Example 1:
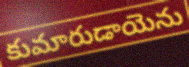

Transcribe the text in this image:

కుమారుడాయెను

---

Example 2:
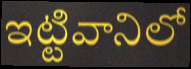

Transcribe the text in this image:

ఇట్టివానిలో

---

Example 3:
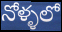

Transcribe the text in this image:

నోళ్ళలో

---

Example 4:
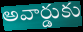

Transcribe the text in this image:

అవార్డుకు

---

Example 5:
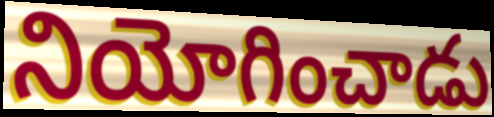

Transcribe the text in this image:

నియోగించాడు